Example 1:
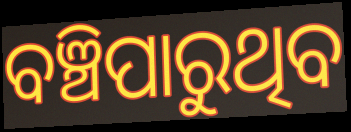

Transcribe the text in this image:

ବଞ୍ଚିପାରୁଥିବ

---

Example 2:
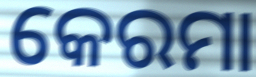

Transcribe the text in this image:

କେରମା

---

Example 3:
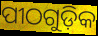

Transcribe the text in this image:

ପୀଠଗୁଡ଼ିକ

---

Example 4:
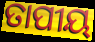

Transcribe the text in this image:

ତାପୀୟ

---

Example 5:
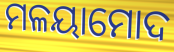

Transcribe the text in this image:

ମଳୟାମୋଦ